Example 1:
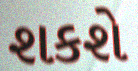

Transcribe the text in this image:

શકશે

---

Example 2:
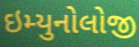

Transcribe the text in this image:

ઇમ્યુનોલોજી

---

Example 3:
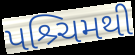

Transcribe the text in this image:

પશ્ર્ચિમથી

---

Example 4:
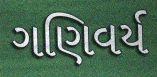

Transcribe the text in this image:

ગણિવર્ય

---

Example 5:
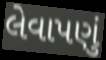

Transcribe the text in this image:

લેવાપણું